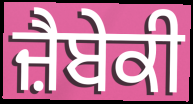
ਜ਼ੈਬੇਕੀ